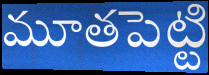
మూతపెట్టి